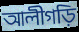
আলীগড়ি